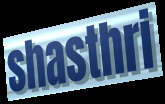
shasthri